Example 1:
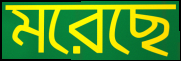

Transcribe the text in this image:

মরেছে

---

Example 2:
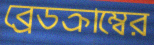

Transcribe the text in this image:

ব্রেডক্রাম্বের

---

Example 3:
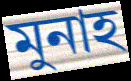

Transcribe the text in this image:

মুনাহ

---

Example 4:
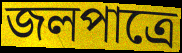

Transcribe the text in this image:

জলপাত্রে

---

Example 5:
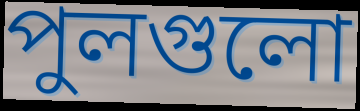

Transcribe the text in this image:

পুলগুলো